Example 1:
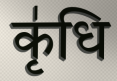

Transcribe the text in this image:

कृ॑धि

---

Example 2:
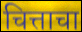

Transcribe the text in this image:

चित्ताचा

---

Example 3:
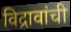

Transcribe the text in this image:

विद्रावांची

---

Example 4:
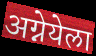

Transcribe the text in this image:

अग्नेयेला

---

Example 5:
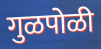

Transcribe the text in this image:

गुळपोळी